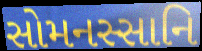
સોમનસ્સાનિ